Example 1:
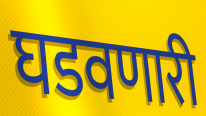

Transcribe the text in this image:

घडवणारी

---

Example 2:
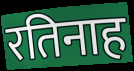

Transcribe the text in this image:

रतिनाह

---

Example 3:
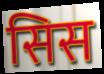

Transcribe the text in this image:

सिस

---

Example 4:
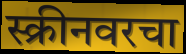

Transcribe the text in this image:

स्क्रीनवरचा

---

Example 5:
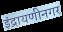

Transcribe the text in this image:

इंद्रायणीनगर